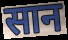
सान